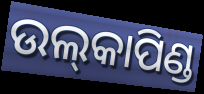
ଉଲ୍‌କାପିଣ୍ଡ